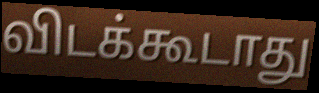
விடக்கூடாது